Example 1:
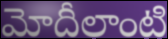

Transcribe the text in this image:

మోదీలాంటి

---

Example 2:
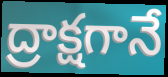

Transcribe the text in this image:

ద్రాక్షగానే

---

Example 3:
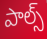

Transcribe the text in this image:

పాల్స్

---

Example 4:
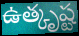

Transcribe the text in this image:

ఉత్కృష్ట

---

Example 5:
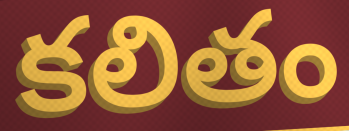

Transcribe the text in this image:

కలితం